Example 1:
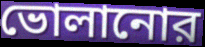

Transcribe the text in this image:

ভোলানোর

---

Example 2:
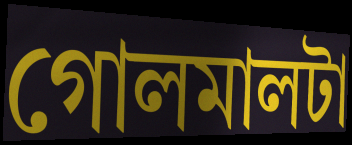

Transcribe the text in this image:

গোলমালটা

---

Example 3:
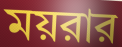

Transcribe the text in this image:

ময়রার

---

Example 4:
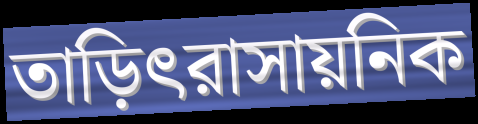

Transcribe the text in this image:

তাড়িৎরাসায়নিক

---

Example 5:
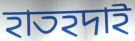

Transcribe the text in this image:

হাতহদাই